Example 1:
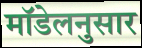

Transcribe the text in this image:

मॉडेलनुसार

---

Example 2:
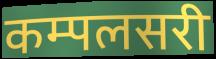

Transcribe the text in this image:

कम्पलसरी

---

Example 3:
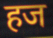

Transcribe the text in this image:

हज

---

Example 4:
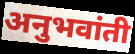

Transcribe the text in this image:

अनुभवांती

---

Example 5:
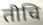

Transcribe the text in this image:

तीचि